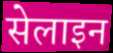
सेलाइन